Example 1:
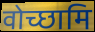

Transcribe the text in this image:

वोच्छामि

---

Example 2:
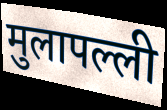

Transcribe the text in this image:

मुलापल्ली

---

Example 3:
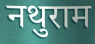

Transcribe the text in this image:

नथुराम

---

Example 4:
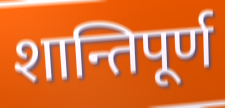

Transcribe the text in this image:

शान्तिपूर्ण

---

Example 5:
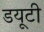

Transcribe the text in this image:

डयूटी